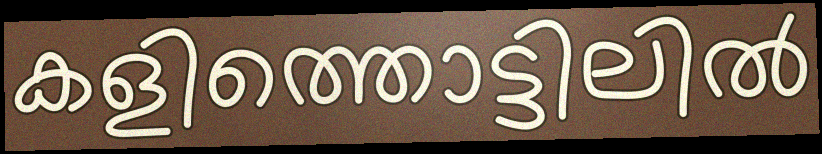
കളിത്തൊട്ടിലിൽ